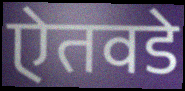
ऐतवडे